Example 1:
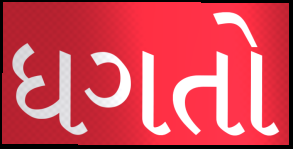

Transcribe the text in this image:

ધગતો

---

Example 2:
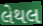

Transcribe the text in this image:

લેથલ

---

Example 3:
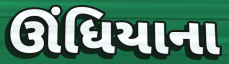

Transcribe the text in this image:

ઊંધિયાના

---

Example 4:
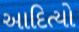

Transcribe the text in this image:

આદિત્યો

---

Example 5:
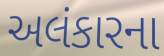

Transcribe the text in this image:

અલંકારના